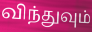
விந்துவும்